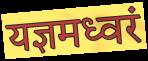
यज्ञमध्वरं